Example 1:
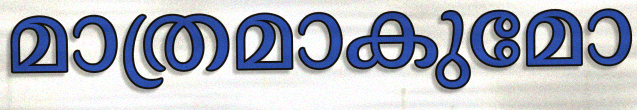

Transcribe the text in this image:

മാത്രമാകുമോ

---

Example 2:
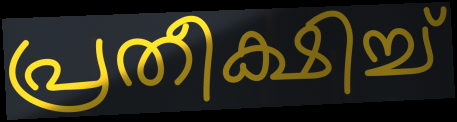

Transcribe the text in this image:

പ്രതീക്ഷിച്ച്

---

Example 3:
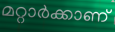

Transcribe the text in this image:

മറ്റാർക്കാണ്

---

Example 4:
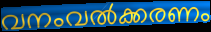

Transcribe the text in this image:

വനംവൽക്കരണം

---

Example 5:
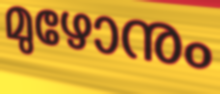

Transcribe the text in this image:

മുഴോനും